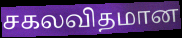
சகலவிதமான